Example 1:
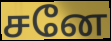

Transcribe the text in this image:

சனே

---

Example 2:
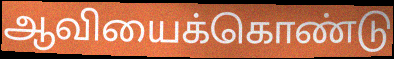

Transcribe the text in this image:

ஆவியைக்கொண்டு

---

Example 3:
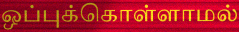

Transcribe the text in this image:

ஒப்புக்கொள்ளாமல்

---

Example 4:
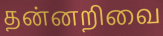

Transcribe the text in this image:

தன்னறிவை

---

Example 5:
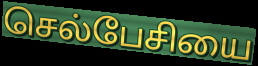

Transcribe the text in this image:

செல்பேசியை